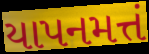
યાપનમત્તં